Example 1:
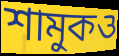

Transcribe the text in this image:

শামুকও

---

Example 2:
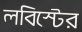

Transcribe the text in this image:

লবিস্টের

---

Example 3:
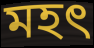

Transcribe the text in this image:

মহত্‍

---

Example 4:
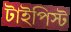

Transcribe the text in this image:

টাইপিস্ট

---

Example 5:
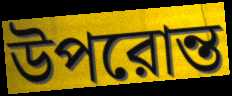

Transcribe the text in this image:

উপরোন্ত